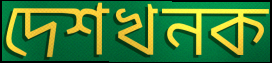
দেশখনক